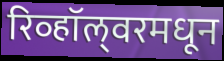
रिव्हॉल्वरमधून